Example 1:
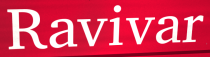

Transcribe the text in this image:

Ravivar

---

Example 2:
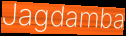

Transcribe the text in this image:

Jagdamba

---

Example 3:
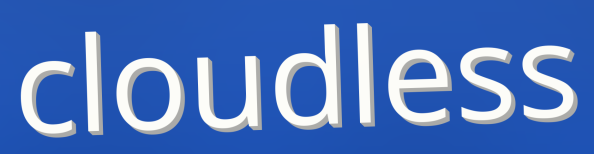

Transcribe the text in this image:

cloudless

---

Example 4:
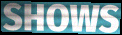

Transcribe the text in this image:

SHOWS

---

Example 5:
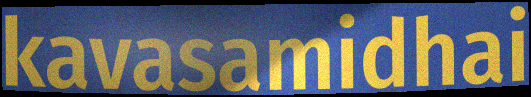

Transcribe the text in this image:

kavasamidhai